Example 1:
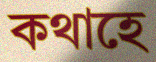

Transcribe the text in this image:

কথাহে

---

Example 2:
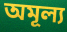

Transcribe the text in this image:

অমূল্য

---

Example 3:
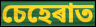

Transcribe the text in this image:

চেহেৰাত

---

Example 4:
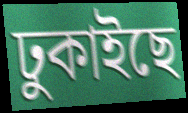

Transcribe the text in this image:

ঢুকাইছে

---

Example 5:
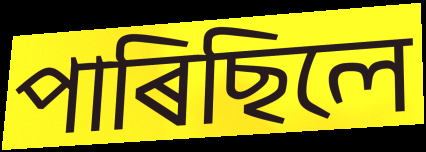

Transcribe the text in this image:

পাৰিছিলে